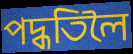
পদ্ধতিলৈ